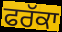
ਫਰੱਕਾ